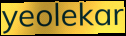
yeolekar